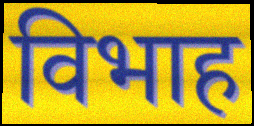
विभाह